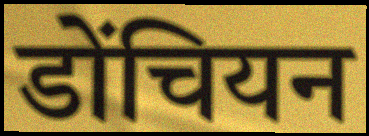
डोंचियन